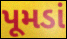
પૂમડાં